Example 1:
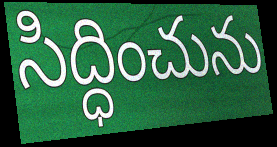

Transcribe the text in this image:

సిద్ధించును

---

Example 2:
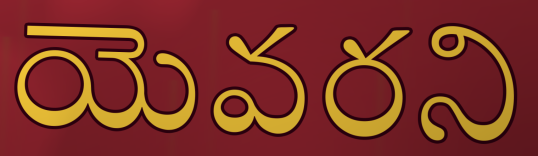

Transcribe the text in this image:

యెవరని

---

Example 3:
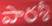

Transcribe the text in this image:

పారశీ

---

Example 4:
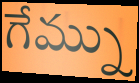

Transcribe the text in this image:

గేమ్ను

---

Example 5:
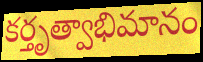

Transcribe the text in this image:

కర్తృత్వాభిమానం